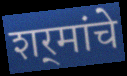
शर्मांचे